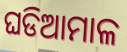
ଘଡିଆମାଳ